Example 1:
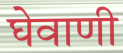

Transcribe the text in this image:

घेवाणी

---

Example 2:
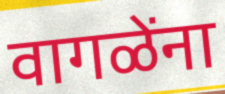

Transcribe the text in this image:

वागळेंना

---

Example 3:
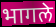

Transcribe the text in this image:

भागले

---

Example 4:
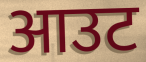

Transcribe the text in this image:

आउट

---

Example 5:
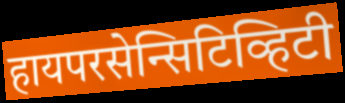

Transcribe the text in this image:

हायपरसेन्सिटिव्हिटी